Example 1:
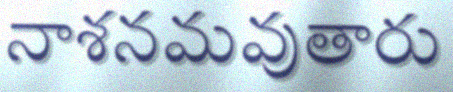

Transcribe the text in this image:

నాశనమవుతారు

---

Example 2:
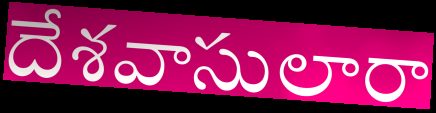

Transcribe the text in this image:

దేశవాసులారా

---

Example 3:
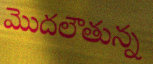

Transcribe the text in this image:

మొదలౌతున్న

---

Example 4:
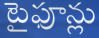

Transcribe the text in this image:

టైఫూన్లు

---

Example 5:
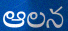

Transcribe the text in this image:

ఆలన